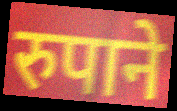
रुपाने